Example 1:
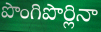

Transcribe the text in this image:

పొంగిపొర్లినా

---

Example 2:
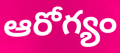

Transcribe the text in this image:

ఆరోగ్యం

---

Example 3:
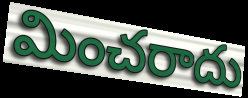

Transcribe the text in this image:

మించరాదు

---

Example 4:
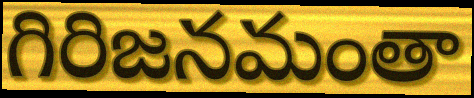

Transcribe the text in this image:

గిరిజనమంతా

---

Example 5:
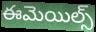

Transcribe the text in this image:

ఈమెయిల్స్